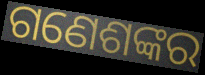
ଗଣେଶଙ୍କର